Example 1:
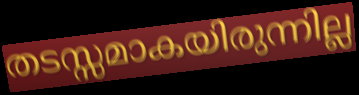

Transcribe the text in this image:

തടസ്സമാകയിരുന്നില്ല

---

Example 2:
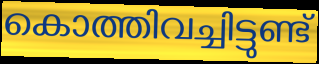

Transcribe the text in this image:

കൊത്തിവച്ചിട്ടുണ്ട്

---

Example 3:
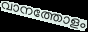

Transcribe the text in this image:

വാനത്തോളം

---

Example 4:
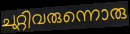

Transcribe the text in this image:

ചുറ്റിവരുന്നൊരു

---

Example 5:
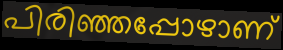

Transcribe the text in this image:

പിരിഞ്ഞപ്പോഴാണ്